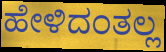
ಹೇಳಿದಂತಲ್ಲ